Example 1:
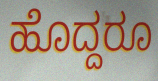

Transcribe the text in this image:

ಹೊದ್ದರೂ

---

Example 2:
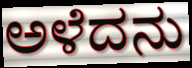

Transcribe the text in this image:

ಅಳೆದನು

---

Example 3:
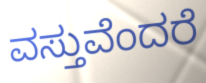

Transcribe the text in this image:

ವಸ್ತುವೆಂದರೆ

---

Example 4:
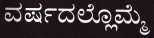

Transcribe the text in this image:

ವರ್ಷದಲ್ಲೊಮ್ಮೆ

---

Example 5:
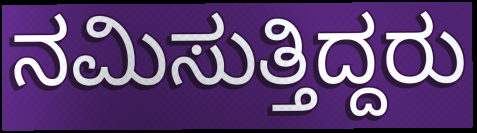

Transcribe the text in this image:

ನಮಿಸುತ್ತಿದ್ದರು